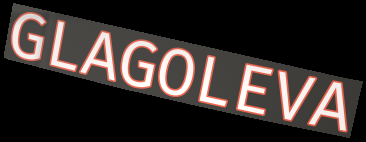
GLAGOLEVA